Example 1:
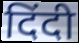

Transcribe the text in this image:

दिंदी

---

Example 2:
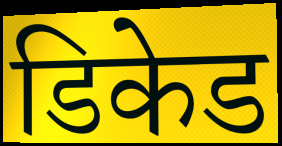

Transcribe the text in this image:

डिकेड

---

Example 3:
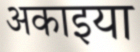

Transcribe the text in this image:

अकाइया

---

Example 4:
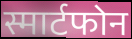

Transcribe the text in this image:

स्‍मार्टफोन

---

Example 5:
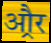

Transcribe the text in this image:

औ्रर